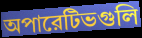
অপারেটিভগুলি